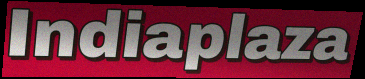
Indiaplaza